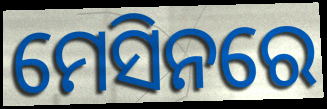
ମେସିନରେ